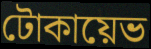
টোকায়েভ